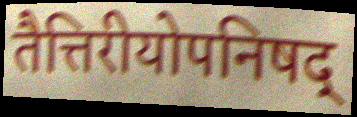
तैत्तिरीयोपनिषद्